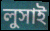
লুসাই